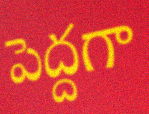
పెద్దగా